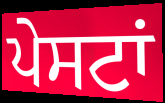
ਪੇਸਟਾਂ